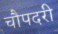
चौपदरी